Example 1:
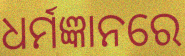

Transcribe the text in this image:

ଧର୍ମଜ୍ଞାନରେ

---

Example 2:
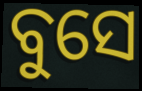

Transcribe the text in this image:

ବୁସେ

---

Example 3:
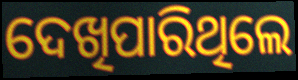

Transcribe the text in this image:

ଦେଖିପାରିଥିଲେ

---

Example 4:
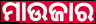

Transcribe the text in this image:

ମାଉଜାର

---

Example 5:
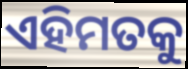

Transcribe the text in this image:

ଏହିମତକୁ